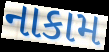
નાકામ